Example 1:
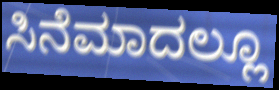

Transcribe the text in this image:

ಸಿನೆಮಾದಲ್ಲೂ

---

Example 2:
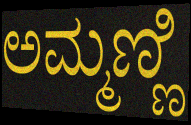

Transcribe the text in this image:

ಅಮ್ಮಣ್ಣಿ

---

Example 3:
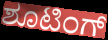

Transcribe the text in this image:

ಶೂಟಿಂಗ್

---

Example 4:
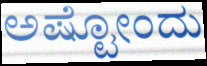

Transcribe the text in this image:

ಅಷ್ಟೋಂದು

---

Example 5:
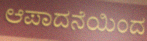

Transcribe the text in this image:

ಆಪಾದನೆಯಿಂದ